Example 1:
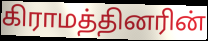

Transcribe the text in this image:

கிராமத்தினரின்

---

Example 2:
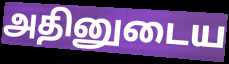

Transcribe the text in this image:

அதினுடைய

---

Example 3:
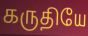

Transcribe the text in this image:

கருதியே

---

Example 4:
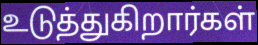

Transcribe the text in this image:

உடுத்துகிறார்கள்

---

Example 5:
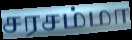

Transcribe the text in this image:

சரசம்மா